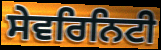
ਸੇਵਰਿਨਿਟੀ